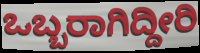
ಒಬ್ಬರಾಗಿದ್ದೀರಿ